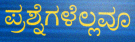
ಪ್ರಶ್ನೆಗಳೆಲ್ಲವೂ